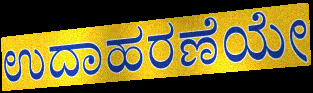
ಉದಾಹರಣೆಯೇ